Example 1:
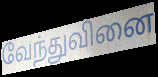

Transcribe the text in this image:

வேந்துவினை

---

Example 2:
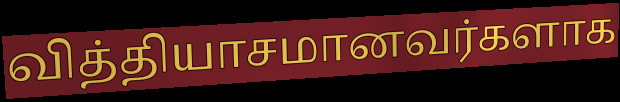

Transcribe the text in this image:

வித்தியாசமானவர்களாக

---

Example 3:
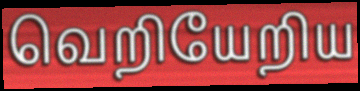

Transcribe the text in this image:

வெறியேறிய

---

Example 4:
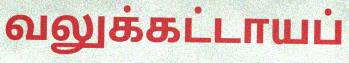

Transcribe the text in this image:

வலுக்கட்டாயப்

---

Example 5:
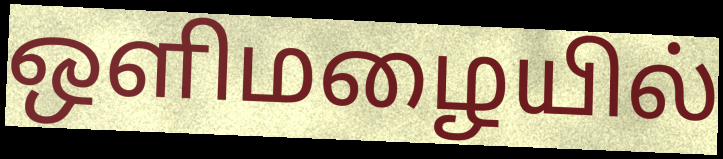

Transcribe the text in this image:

ஒளிமழையில்